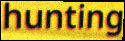
hunting